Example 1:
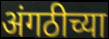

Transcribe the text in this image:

अंगठीच्या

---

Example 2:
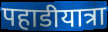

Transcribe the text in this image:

पहाडीयात्रा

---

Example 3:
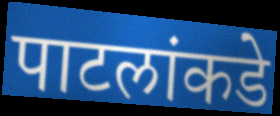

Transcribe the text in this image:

पाटलांकडे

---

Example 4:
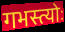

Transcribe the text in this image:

गभस्त्योः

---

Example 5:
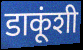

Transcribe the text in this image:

डाकूंशी